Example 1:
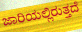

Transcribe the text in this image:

ಜಾರಿಯಲ್ಲಿರುತ್ತದೆ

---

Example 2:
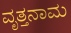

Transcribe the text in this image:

ವೃತ್ತನಾಮ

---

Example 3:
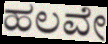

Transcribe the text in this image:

ಹಲವೇ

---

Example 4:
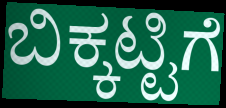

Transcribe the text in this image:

ಬಿಕ್ಕಟ್ಟಿಗೆ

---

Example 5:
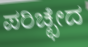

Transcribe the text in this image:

ಪರಿಚ್ಛೇದ